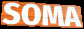
SOMA